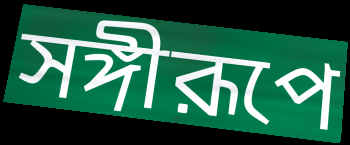
সঙ্গীরূপে